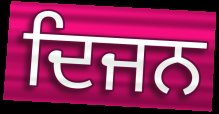
ਦਿਜਨ